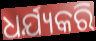
ଧର୍ଯ୍ୟକରି